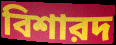
বিশারদ